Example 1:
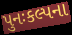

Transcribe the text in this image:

પુનઃકલ્પના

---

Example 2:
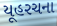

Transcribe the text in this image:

યૂહરચના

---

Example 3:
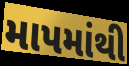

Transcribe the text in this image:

માપમાંથી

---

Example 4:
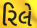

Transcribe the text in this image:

રિલે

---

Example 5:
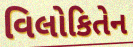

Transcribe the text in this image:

વિલોકિતેન